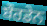
ਬੌਰਡੇਨ